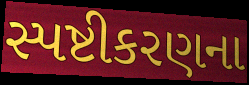
સ્પષ્ટીકરણના